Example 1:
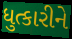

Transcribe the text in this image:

ધુત્કારીને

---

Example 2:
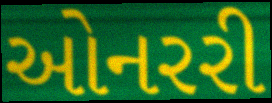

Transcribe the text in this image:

ઓનરરી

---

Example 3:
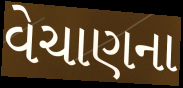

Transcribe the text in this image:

વેચાણના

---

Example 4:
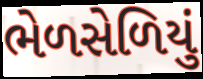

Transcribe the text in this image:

ભેળસેળિયું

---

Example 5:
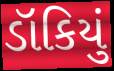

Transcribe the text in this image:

ડૉકિયું